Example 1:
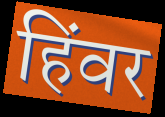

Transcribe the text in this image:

हिंवर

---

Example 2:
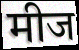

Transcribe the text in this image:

मीज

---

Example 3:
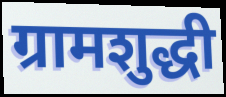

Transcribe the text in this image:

ग्रामशुद्धी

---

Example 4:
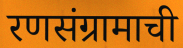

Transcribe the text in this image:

रणसंग्रामाची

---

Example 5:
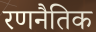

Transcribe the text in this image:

रणनैतिक